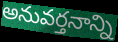
అనువర్తనాన్ని